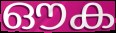
ഔക